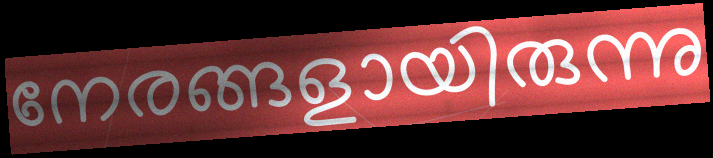
നേരങ്ങളായിരുന്നു